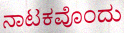
ನಾಟಕವೊಂದು